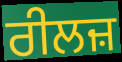
ਰੀਲਜ਼